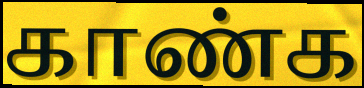
காண்க